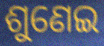
ଶୁଣେଇ